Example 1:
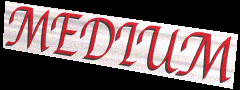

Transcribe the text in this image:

MEDIUM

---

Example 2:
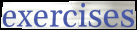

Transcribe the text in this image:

exercises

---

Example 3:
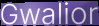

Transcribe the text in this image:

Gwalior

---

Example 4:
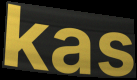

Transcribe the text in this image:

kas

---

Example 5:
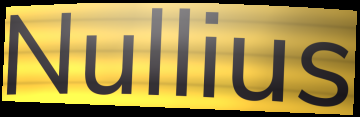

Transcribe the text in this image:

Nullius